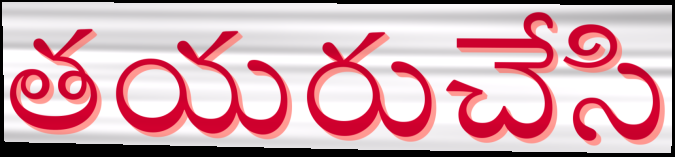
తయరుచేసి